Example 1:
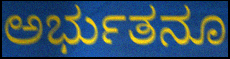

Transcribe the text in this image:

ಅರ್ಭುತನೂ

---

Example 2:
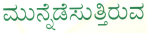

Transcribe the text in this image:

ಮುನ್ನೆಡೆಸುತ್ತಿರುವ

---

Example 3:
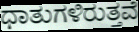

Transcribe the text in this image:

ಧಾತುಗಳಿರುತ್ತವೆ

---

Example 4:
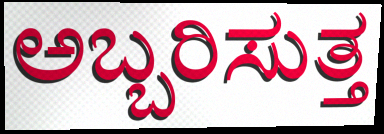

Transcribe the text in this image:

ಅಬ್ಬರಿಸುತ್ತ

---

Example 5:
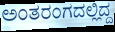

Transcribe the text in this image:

ಅಂತರಂಗದಲ್ಲಿದ್ದ